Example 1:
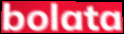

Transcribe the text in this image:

bolata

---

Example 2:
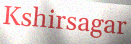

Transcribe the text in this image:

Kshirsagar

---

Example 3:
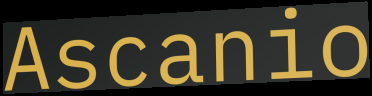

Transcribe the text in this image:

Ascanio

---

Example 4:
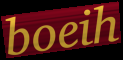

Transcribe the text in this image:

boeih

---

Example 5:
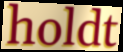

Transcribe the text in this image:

holdt